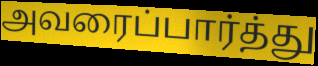
அவரைப்பார்த்து